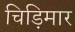
चिड़िमार